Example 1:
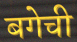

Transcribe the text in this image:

बगेची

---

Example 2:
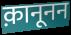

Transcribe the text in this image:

क़ानूनन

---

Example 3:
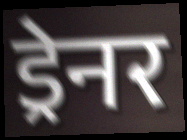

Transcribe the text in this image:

ड्रेनर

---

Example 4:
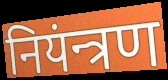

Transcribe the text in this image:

नियंन्त्रण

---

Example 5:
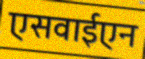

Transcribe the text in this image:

एसवाईएन